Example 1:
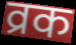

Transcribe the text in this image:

व्रक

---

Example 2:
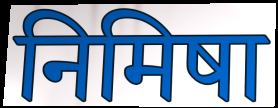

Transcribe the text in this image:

निमिषा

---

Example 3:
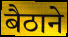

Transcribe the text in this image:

बैठाने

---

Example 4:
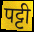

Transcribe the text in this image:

पट्टी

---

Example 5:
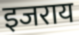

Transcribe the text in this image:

इजराय